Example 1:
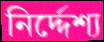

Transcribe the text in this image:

নির্দ্দেশ্য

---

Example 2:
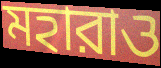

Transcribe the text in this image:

মহারাও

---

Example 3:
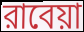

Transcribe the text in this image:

রাবেয়া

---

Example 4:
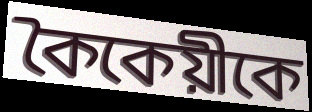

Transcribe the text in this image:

কৈকেয়ীকে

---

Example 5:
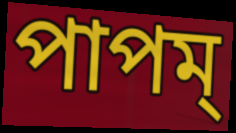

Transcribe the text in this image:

পাপম্